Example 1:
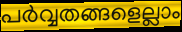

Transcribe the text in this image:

പർവ്വതങ്ങളെല്ലാം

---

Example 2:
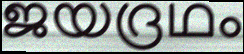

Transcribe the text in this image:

ജയദ്രഥം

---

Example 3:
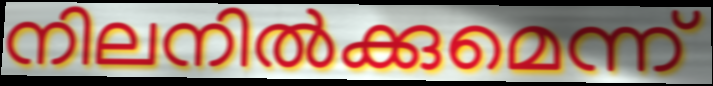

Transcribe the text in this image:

നിലനിൽക്കുമെന്ന്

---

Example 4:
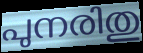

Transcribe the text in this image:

പുനരിതു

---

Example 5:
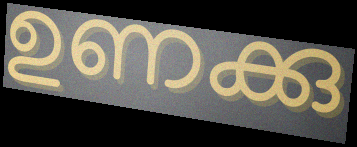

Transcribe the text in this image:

ഉണക്കു